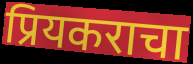
प्रियकराचा